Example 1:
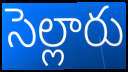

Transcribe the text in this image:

సెల్లారు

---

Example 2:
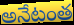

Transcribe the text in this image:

అనేటంత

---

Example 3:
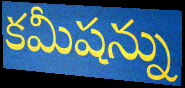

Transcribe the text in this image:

కమీషన్ను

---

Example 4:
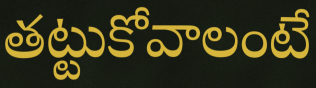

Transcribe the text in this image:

తట్టుకోవాలంటే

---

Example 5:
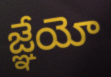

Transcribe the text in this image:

జ్ఞేయో